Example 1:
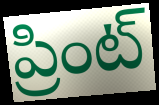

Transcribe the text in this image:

ప్రింట్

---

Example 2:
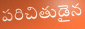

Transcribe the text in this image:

పరిచితుడైన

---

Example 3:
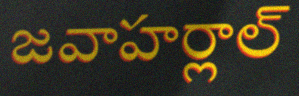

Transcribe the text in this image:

జవాహర్లాల్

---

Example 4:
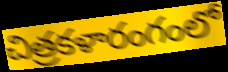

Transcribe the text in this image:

చిత్రకళారంగంలో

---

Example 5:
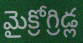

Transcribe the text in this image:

మైక్రోగ్రిడ్ల